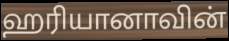
ஹரியானாவின்